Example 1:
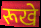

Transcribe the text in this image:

रूखे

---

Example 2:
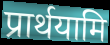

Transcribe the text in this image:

प्रार्थयामि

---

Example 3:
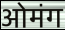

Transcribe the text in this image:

ओमंग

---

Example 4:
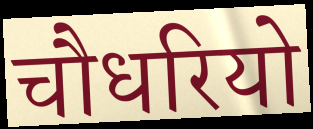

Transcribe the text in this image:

चौधरियो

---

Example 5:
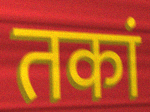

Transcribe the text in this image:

तकां